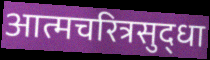
आत्मचरित्रसुद्धा